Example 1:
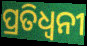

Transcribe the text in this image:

ପ୍ରତିଧ୍ଵନୀ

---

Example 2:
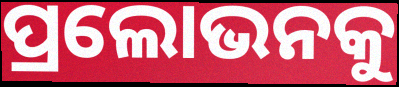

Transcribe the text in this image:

ପ୍ରଲୋଭନକୁ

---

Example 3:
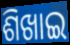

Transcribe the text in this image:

ଶିଖାଇ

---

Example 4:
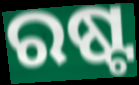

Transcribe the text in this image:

ରଷ୍ଟ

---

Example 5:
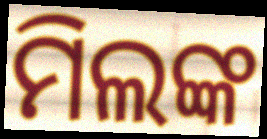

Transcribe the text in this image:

ମିଲଙ୍କ